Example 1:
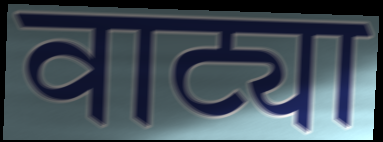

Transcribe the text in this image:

वाट्या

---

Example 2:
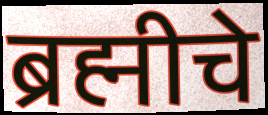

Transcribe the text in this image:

ब्रह्मीचे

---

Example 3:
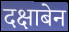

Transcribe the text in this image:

दक्षाबेन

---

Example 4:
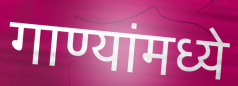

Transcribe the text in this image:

गाण्यांमध्ये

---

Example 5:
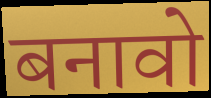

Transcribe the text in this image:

बनावो